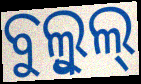
ବୁଲ୍ବୁଲ୍